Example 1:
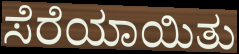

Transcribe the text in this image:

ಸೆರೆಯಾಯಿತು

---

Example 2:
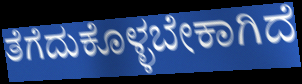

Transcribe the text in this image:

ತೆಗೆದುಕೊಳ್ಳಬೇಕಾಗಿದೆ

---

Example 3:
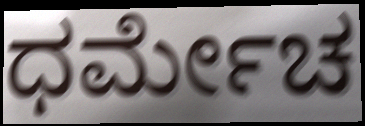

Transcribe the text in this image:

ಧರ್ಮೇಚ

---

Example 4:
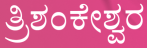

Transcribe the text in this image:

ತ್ರಿಶಂಕೇಶ್ವರ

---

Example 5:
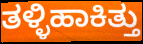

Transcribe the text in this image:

ತಳ್ಳಿಹಾಕಿತ್ತು